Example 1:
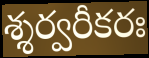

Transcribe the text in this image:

శ్శర్వరీకరః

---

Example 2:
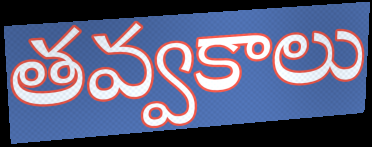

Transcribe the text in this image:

తవ్వకాలు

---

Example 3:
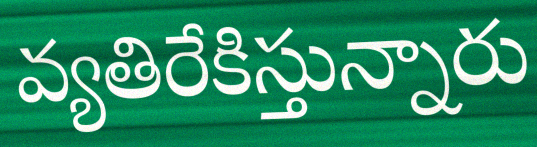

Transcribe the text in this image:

వ్యతిరేకిస్తున్నారు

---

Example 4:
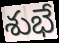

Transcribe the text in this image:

శుభే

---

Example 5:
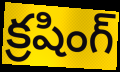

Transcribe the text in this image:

క్రషింగ్